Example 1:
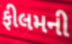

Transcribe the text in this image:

ફીલમની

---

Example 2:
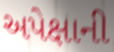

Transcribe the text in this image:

અપેક્ષાની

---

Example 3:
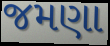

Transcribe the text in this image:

જમણા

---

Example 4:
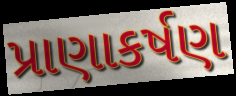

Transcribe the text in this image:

પ્રાણાકર્ષણ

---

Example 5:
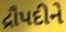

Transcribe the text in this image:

દ્રૌપદીને